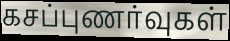
கசப்புணர்வுகள்